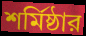
শর্মিষ্ঠার